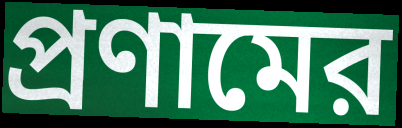
প্রণামের